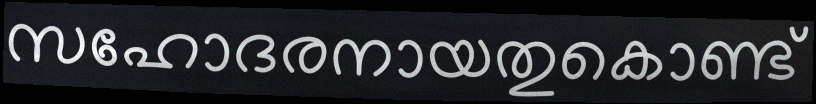
സഹോദരനായതുകൊണ്ട്